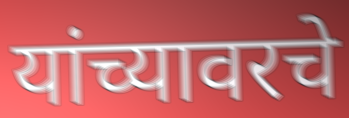
यांच्यावरचे